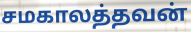
சமகாலத்தவன்